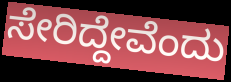
ಸೇರಿದ್ದೇವೆಂದು